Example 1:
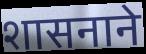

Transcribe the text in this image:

शासनाने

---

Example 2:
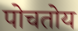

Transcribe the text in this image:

पोचतोय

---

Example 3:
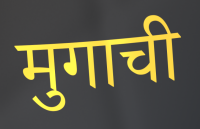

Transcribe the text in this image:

मुगाची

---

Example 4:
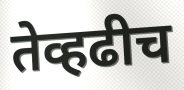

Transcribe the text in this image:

तेव्हढीच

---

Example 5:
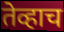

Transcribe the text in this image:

तेव्हाच